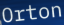
Orton